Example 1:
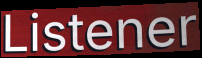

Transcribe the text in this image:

Listener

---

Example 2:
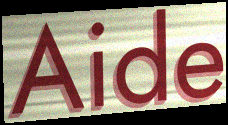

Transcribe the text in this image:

Aide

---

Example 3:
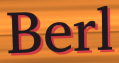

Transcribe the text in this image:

Berl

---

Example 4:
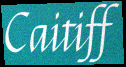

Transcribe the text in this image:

Caitiff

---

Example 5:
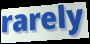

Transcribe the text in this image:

rarely